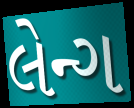
લેન્ગ